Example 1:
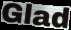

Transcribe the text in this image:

Glad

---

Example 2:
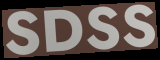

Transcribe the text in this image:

SDSS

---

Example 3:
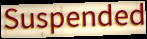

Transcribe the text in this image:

Suspended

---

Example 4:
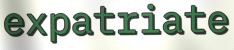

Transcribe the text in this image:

expatriate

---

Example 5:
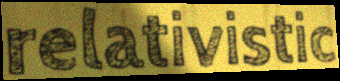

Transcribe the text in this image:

relativistic